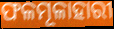
ଫଳମୂଳାହାରୀ